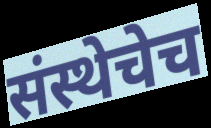
संस्थेचेच